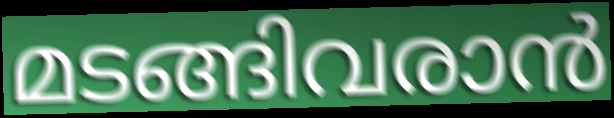
മടങ്ങിവരാൻ